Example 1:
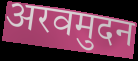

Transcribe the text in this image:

अरवमुदन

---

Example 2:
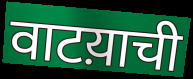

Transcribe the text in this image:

वाटय़ाची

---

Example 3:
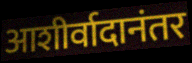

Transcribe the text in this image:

आशीर्वादानंतर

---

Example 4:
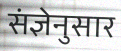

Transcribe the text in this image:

संज्ञेनुसार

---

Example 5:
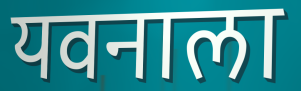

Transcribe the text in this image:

यवनाला